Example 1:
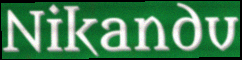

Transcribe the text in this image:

Nikandu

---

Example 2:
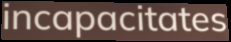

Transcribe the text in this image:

incapacitates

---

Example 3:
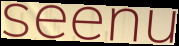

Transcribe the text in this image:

seenu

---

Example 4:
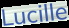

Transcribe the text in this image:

Lucille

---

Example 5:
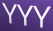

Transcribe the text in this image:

YYY